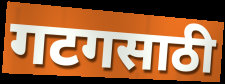
गटगसाठी